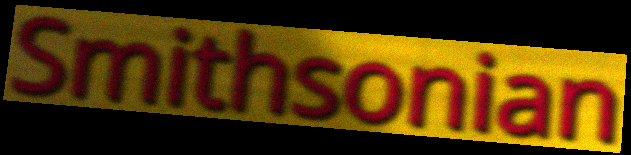
Smithsonian